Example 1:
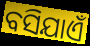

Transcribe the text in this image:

ବସିଯାଏଁ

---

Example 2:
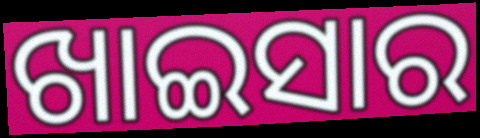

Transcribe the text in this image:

ଖାଇସାର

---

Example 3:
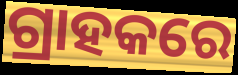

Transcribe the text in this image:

ଗ୍ରାହକରେ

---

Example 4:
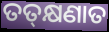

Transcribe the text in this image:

ତତ୍‍କ୍ଷଣାତ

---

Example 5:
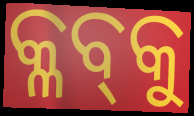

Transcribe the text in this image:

କ୍ଳବ୍‌କୁ